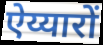
ऐय्यारों